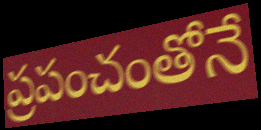
ప్రపంచంతోనే